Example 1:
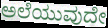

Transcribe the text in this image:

ಅಲೆಯುವುದೇ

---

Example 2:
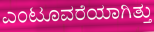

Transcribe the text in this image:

ಎಂಟೂವರೆಯಾಗಿತ್ತು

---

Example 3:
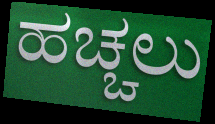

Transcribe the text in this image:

ಹಚ್ಚಲು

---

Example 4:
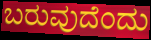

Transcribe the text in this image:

ಬರುವುದೆಂದು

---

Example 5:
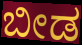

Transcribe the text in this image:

ಬೀಡ